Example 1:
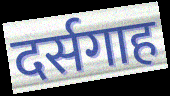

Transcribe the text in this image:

दर्सगाह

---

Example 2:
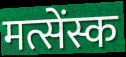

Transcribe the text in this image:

मत्सेंस्क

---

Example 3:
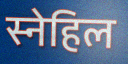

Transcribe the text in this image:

स्नेहिल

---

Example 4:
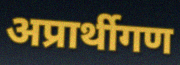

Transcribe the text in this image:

अप्रार्थीगण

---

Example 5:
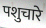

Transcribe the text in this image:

पशुचारे